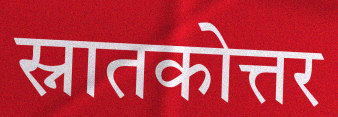
स्नातकोत्तर